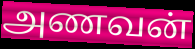
அணவன்